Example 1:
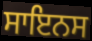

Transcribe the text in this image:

ਸਾਇਨਸ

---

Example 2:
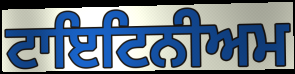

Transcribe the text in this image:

ਟਾਇਟਿਨੀਅਮ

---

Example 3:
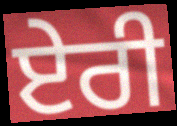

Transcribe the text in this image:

ਏਰੀ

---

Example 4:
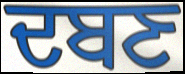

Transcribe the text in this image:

ਦਬਣ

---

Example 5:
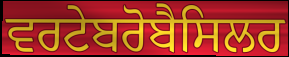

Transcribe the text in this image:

ਵਰਟੇਬਰੋਬੈਸਿਲਰ